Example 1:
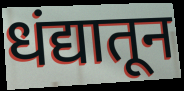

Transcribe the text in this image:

धंद्यातून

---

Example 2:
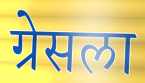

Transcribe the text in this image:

ग्रेसला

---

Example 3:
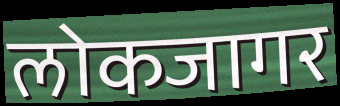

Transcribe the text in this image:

लोकजागर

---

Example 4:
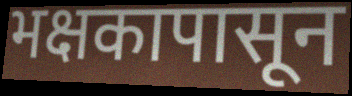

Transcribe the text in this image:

भक्षकापासून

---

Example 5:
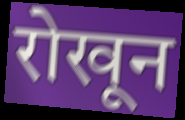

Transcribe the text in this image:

रोखून